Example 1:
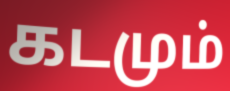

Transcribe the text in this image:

கடமும்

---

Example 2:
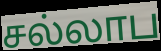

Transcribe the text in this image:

சல்லாப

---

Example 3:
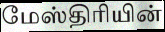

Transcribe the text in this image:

மேஸ்திரியின்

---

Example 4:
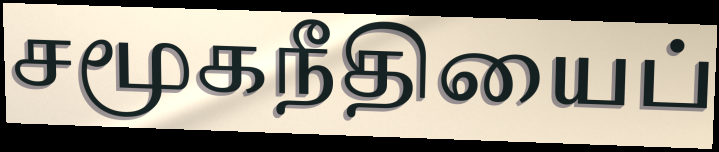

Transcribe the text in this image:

சமூகநீதியைப்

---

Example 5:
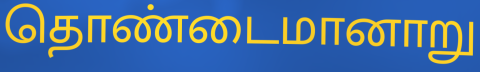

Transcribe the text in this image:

தொண்டைமானாறு